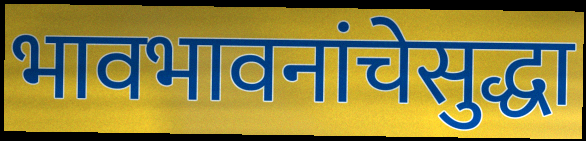
भावभावनांचेसुद्धा